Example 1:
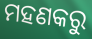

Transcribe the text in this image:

ମହଣକରୁ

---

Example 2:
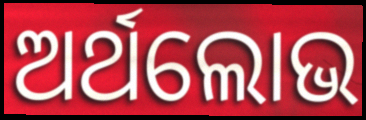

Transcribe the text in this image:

ଅର୍ଥଲୋଭ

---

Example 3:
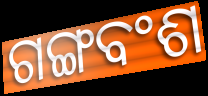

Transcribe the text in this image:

ଗଙ୍ଗବଂଶ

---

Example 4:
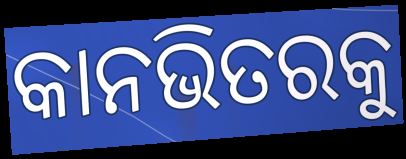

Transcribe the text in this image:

କାନଭିତରକୁ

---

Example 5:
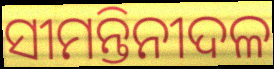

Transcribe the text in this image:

ସୀମନ୍ତିନୀଦଳ